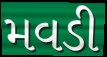
મવડી